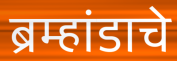
ब्रम्हांडाचे